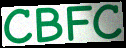
CBFC